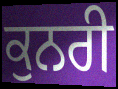
ਕੁਨਰੀ